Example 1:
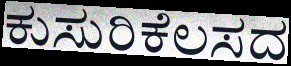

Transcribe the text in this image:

ಕುಸುರಿಕೆಲಸದ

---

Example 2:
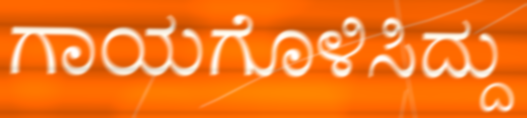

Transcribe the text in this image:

ಗಾಯಗೊಳಿಸಿದ್ದು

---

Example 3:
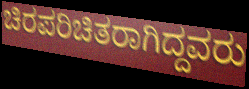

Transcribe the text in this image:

ಚಿರಪರಿಚಿತರಾಗಿದ್ದವರು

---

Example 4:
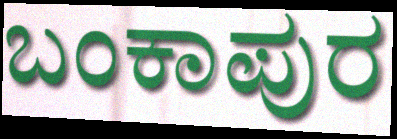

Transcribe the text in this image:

ಬಂಕಾಪುರ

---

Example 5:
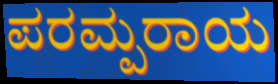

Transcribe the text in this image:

ಪರಮ್ಪರಾಯ